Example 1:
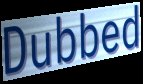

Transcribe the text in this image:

Dubbed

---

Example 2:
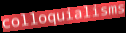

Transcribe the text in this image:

colloquialisms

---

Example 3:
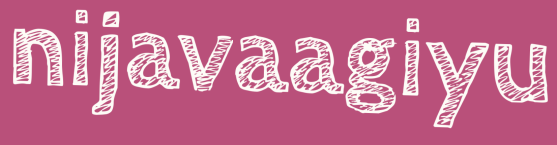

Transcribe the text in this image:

nijavaagiyu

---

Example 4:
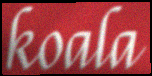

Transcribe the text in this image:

koala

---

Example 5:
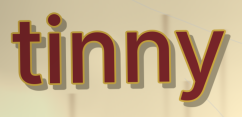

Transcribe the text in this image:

tinny